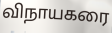
விநாயகரை